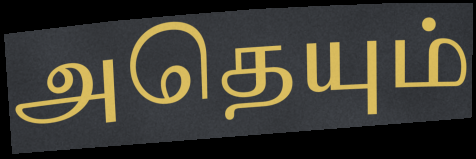
அதெயும்